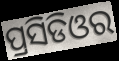
ପ୍ରସିଡିଓର